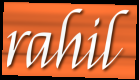
rahil